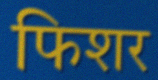
फिशर